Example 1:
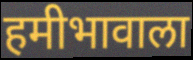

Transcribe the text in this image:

हमीभावाला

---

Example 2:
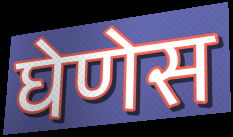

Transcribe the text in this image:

घेणेस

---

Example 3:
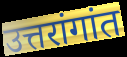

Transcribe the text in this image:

उत्तरांगांत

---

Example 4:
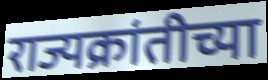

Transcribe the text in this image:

राज्यक्रांतीच्या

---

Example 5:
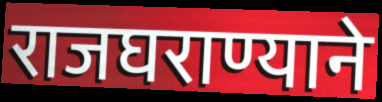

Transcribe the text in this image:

राजघराण्याने